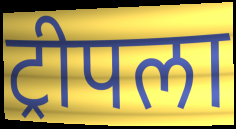
ट्रीपला